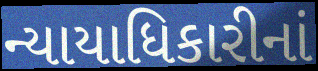
ન્યાયાધિકારીનાં